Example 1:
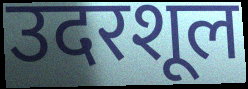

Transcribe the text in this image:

उदरशूल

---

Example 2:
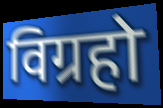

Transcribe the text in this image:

विग्रहो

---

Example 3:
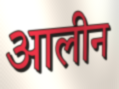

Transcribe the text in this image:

आलीन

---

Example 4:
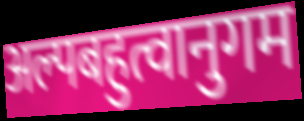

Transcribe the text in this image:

अल्पबहुत्वानुगम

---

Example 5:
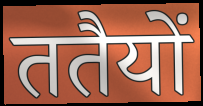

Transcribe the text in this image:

ततैयों